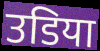
उडिया